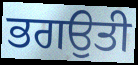
ਭਗਉਤੀ